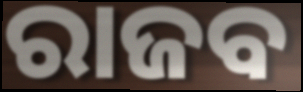
ରାଜବ